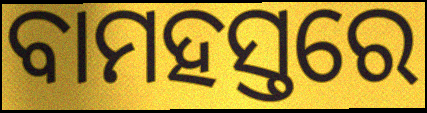
ବାମହସ୍ତରେ